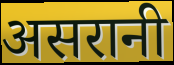
असरानी